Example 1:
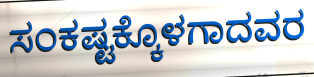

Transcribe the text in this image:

ಸಂಕಷ್ಟಕ್ಕೊಳಗಾದವರ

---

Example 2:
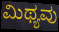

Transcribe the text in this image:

ಮಿಥ್ಯವು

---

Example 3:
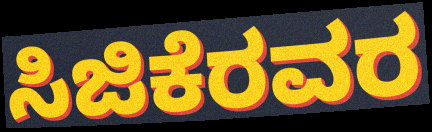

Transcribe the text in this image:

ಸಿಜಿಕೆರವರ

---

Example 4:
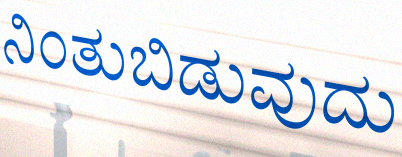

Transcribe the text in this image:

ನಿಂತುಬಿಡುವುದು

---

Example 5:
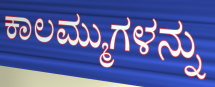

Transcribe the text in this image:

ಕಾಲಮ್ಮುಗಳನ್ನು